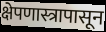
क्षेपणास्त्रापासून